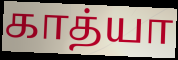
காத்யா